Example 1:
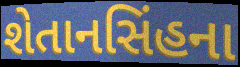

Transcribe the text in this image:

શેતાનસિંહના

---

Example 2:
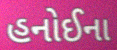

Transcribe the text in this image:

હનોઈના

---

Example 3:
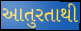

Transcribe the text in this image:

આતુરતાથી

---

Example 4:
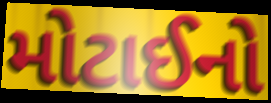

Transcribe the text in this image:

મોટાઈનો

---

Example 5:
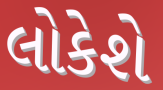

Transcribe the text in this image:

લોકેશે